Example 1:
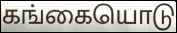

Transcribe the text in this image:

கங்கையொடு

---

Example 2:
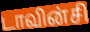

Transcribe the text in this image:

டாவின்சி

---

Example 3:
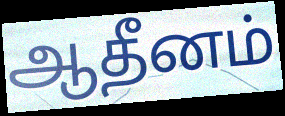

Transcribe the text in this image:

ஆதீனம்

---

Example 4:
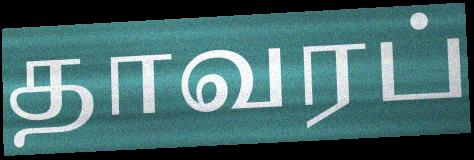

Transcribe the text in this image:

தாவரப்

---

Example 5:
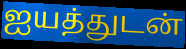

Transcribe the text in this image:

ஐயத்துடன்